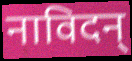
नाविदन्